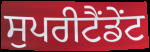
ਸੁਪਰੀਟੈਂਡੇਂਟ